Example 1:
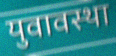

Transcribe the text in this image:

युवावस्था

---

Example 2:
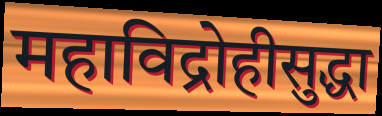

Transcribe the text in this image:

महाविद्रोहीसुद्धा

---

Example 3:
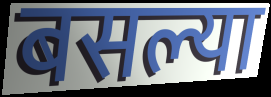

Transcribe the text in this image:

बसल्या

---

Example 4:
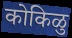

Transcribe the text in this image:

कोकिळु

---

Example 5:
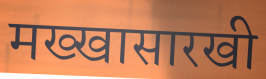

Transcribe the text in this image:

मख्खासारखी